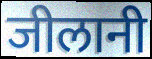
जीलानी